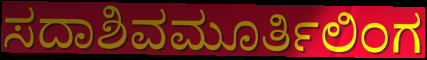
ಸದಾಶಿವಮೂರ್ತಿಲಿಂಗ